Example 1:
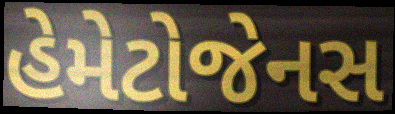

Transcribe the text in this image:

હેમેટોજેનસ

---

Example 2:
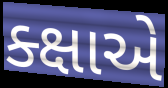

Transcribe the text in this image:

ક્ક્ષાએ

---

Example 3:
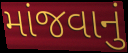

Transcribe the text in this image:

માંજવાનું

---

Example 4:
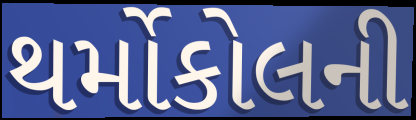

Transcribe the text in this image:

થર્મોકોલની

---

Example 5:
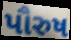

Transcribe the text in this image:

પૌરુષ